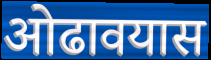
ओढावयास